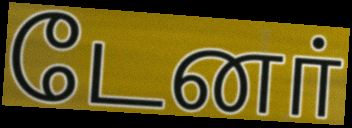
டேனர்